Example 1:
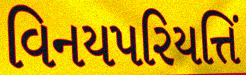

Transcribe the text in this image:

વિનયપરિયત્તિં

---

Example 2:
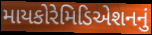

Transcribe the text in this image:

માયકોરેમિડિએશનનું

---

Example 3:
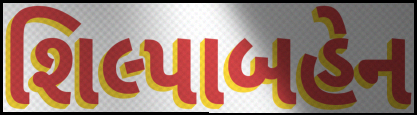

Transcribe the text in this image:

શિલ્પાબહેન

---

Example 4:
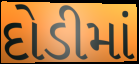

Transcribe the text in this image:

દોડીમાં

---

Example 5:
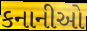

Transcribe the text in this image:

કનાનીઓ